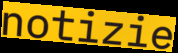
notizie